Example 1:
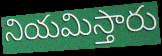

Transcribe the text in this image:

నియమిస్తారు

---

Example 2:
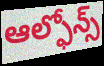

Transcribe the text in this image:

ఆల్ఫోన్స్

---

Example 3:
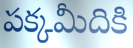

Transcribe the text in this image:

పక్కమీదికి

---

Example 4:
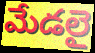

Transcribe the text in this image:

మేడలై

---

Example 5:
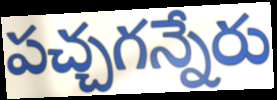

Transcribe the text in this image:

పచ్చగన్నేరు